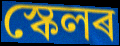
স্কেলৰ